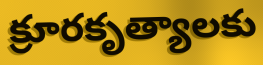
క్రూరకృత్యాలకు